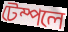
টেম্পলে